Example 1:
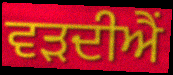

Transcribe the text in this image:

ਵੜਦੀਐਂ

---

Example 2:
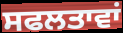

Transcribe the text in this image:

ਸਫਲਤਾਵਾਂ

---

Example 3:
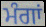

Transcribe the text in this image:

ਮੰਗਾਂ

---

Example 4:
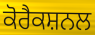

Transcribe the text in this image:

ਕੋਰੈਕਸ਼ਨਲ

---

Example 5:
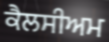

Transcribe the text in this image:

ਕੈਲਸੀਅਮ